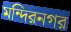
মন্দিরনগর